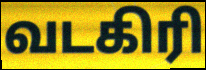
வடகிரி